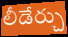
లీడేర్చు